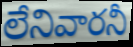
లేనివారనీ